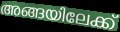
അങ്ങയിലേക്ക്